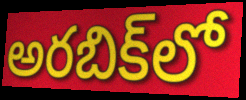
అరబిక్‌లో